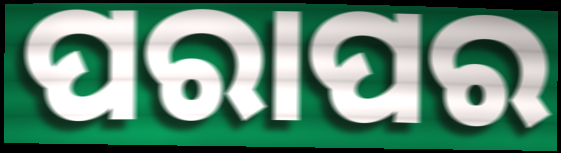
ପରାପର